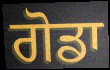
ਗੋਡਾ